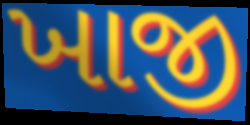
ખાજી